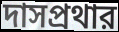
দাসপ্রথার